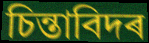
চিন্তাবিদৰ